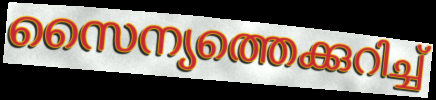
സൈന്യത്തെക്കുറിച്ച്